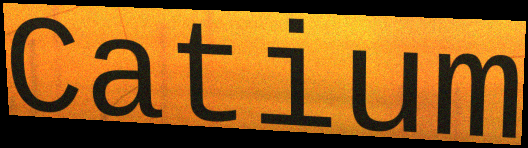
Catium